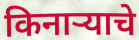
किनाऱ्याचे